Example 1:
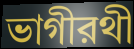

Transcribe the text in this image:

ভাগীরথী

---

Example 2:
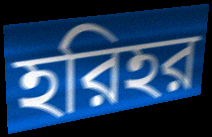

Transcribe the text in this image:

হরিহর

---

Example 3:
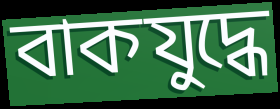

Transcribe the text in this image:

বাকযুদ্ধে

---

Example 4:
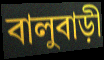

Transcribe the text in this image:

বালুবাড়ী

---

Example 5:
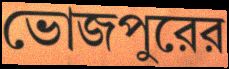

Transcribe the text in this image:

ভোজপুরের